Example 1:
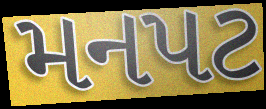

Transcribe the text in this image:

મનપટ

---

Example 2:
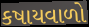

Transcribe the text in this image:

કષાયવાળો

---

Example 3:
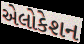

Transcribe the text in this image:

એલોકેશન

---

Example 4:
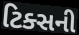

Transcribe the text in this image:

ટિક્સની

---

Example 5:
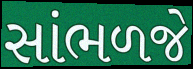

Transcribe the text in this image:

સાંભળજે